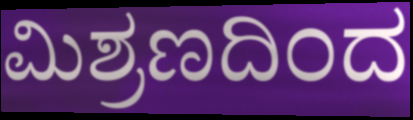
ಮಿಶ್ರಣದಿಂದ